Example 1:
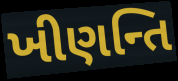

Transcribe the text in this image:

ખીણન્તિ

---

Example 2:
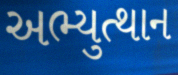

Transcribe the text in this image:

અભ્યુત્થાન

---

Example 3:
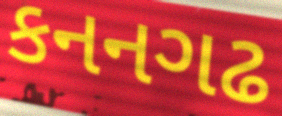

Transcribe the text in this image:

કનનગઢ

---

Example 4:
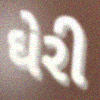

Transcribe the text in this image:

ઘેરી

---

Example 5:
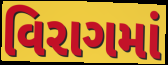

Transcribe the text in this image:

વિરાગમાં